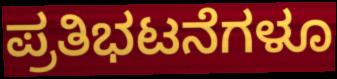
ಪ್ರತಿಭಟನೆಗಳೂ